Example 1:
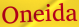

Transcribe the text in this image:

Oneida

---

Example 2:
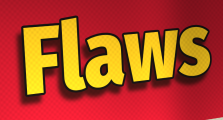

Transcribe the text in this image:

Flaws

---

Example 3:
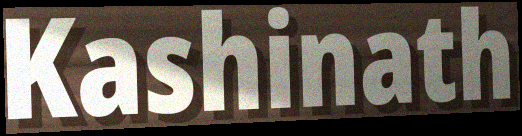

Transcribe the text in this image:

Kashinath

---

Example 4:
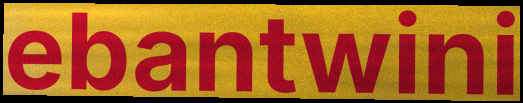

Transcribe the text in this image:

ebantwini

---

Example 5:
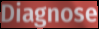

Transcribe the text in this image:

Diagnose